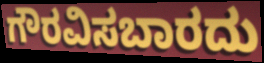
ಗೌರವಿಸಬಾರದು